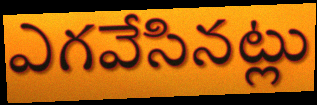
ఎగవేసినట్లు